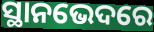
ସ୍ଥାନଭେଦରେ